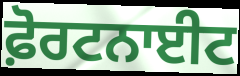
ਫ਼ੋਰਟਨਾਈਟ